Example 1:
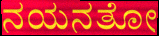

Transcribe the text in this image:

ನಯನತೋ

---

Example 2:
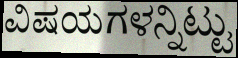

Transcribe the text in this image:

ವಿಷಯಗಳನ್ನಿಟ್ಟು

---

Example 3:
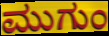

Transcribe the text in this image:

ಮುಗುಂ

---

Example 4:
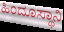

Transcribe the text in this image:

ಹಿಂದೂಸ್ಥಾನಿ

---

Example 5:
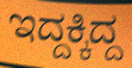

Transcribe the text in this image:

ಇದ್ದಕ್ಕಿದ್ದ